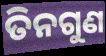
ତିନଗୁଣ